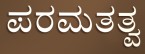
ಪರಮತತ್ವ